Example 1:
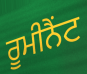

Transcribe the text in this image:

ਰੂਮੀਨੈਂਟ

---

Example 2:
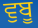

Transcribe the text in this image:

ਵੁਬੂ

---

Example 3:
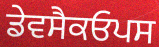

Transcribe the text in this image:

ਡੇਵਸੈਕਓਪਸ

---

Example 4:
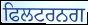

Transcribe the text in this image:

ਫਿਲਟਰਨਗ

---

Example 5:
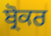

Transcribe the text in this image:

ਬ੍ਰੋਕਰ